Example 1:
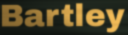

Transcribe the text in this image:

Bartley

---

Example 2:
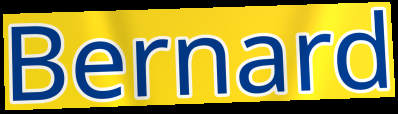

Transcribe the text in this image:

Bernard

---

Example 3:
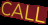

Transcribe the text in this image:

CALL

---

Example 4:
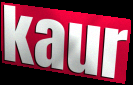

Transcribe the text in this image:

kaur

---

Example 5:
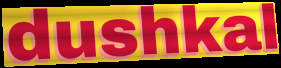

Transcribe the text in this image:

dushkal